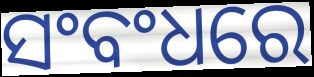
ସଂବଂଧରେ